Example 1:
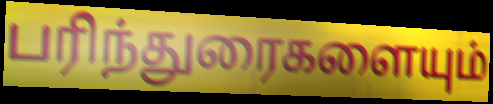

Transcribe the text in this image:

பரிந்துரைகளையும்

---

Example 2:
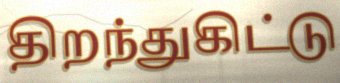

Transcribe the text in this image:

திறந்துகிட்டு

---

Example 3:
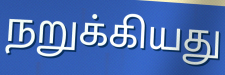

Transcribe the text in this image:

நறுக்கியது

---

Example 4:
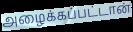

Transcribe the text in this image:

அழைக்கப்பட்டான்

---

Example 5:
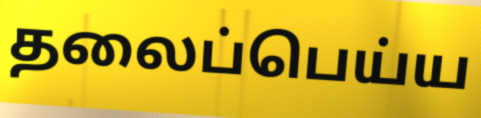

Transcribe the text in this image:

தலைப்பெய்ய